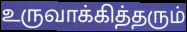
உருவாக்கித்தரும்